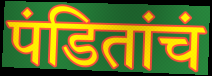
पंडितांचं